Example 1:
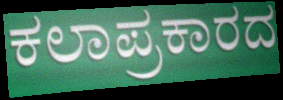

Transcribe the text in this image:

ಕಲಾಪ್ರಕಾರದ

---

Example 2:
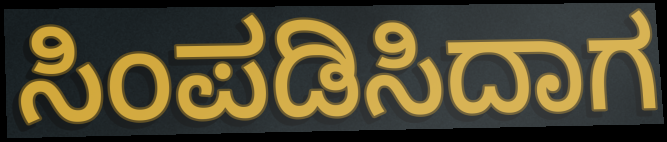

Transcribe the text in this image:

ಸಿಂಪಡಿಸಿದಾಗ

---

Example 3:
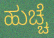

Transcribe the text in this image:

ಹುಚ್ಚೆ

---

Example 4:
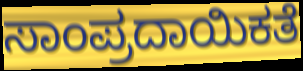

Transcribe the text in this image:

ಸಾಂಪ್ರದಾಯಿಕತೆ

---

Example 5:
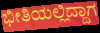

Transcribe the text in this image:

ಭೀತಿಯಲ್ಲಿದ್ದಾಗ